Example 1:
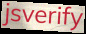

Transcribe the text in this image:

jsverify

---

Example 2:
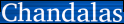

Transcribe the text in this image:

Chandalas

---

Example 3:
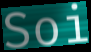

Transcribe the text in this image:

Soi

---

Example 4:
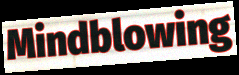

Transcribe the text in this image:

Mindblowing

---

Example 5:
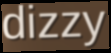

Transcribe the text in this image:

dizzy